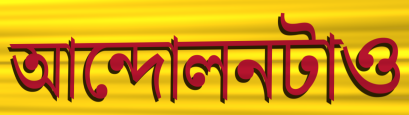
আন্দোলনটাও